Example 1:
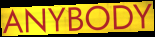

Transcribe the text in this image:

ANYBODY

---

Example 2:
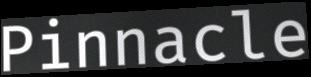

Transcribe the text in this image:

Pinnacle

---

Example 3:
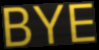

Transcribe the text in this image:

BYE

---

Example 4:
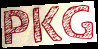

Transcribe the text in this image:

PKG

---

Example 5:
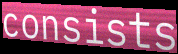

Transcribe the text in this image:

consists